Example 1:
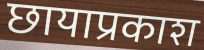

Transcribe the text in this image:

छायाप्रकाश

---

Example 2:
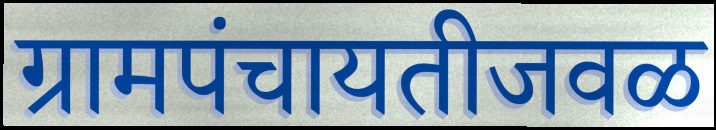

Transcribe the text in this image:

ग्रामपंचायतीजवळ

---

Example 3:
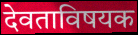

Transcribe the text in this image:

देवताविषयक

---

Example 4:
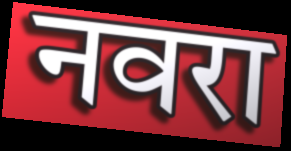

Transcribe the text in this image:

नवरा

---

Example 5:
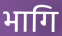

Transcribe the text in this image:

भागि